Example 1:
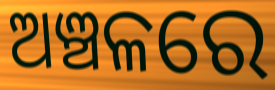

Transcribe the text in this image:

ଅଞ୍ଚଳରେ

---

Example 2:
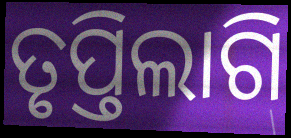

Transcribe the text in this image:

ତୃପ୍ତିଲାଗି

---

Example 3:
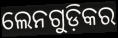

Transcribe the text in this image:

ଲେନଗୁଡ଼ିକର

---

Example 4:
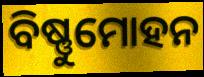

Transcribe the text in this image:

ବିଷ୍ଣୁମୋହନ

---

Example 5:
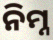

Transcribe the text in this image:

ନିମ୍ନ